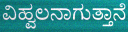
ವಿಹ್ವಲನಾಗುತ್ತಾನೆ